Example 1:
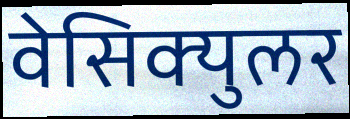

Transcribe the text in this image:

वेसिक्युलर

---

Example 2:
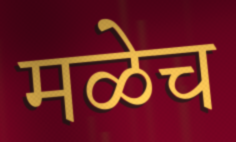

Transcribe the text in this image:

मळेच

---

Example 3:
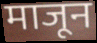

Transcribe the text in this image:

माजून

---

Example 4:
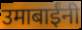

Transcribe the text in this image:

उमाबाईंनी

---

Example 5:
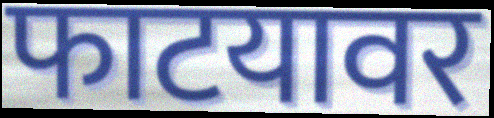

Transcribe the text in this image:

फाटयावर